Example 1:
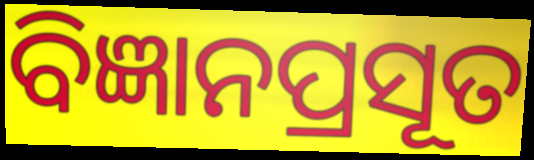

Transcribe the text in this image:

ବିଜ୍ଞାନପ୍ରସୂତ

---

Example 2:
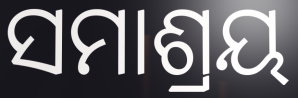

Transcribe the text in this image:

ସମାଶ୍ରୟ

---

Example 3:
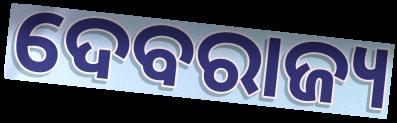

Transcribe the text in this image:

ଦେବରାଜ୍ୟ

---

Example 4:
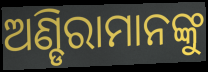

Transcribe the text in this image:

ଅଣ୍ଡିରାମାନଙ୍କୁ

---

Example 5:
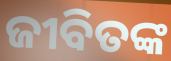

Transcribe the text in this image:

ଜୀବିତଙ୍କ